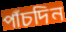
পাঁচদিন